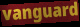
vanguard